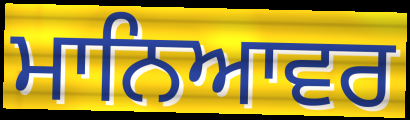
ਮਾਨਿਆਵਰ